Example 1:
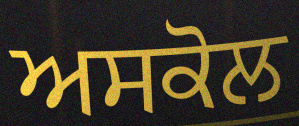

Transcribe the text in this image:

ਅਸਕੋਲ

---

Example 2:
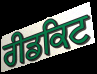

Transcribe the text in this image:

ਰੀਡਕਿਟ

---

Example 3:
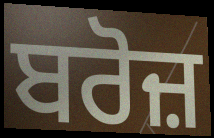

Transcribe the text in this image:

ਬਰੋਜ਼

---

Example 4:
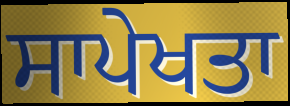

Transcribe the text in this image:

ਸਾਪੇਖਤਾ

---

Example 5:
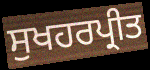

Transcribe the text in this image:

ਸੁਖਹਰਪ੍ਰੀਤ